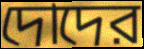
দোদের